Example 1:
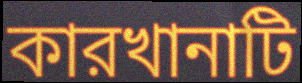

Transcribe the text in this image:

কারখানাটি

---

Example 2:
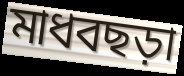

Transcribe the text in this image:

মাধবছড়া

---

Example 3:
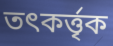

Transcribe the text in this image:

তৎকর্ত্তৃক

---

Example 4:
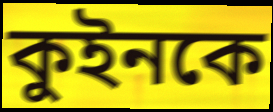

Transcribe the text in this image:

কুইনকে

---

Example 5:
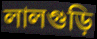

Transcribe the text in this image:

লালগুড়ি